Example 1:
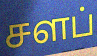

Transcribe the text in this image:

சளப்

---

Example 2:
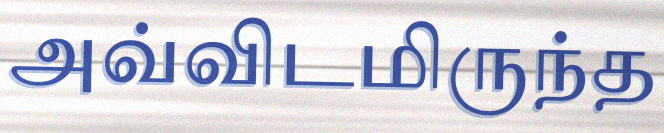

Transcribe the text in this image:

அவ்விடமிருந்த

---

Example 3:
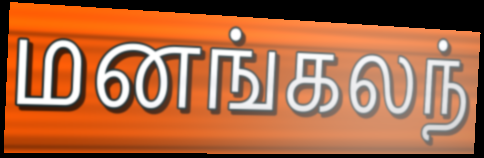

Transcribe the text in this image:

மனங்கலந்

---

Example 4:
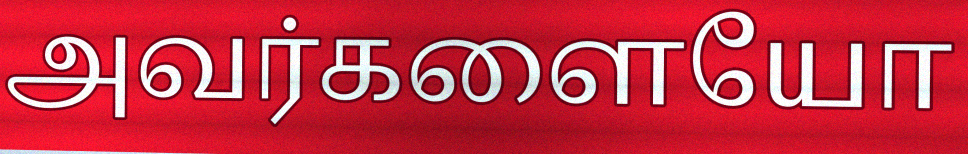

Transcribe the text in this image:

அவர்களையோ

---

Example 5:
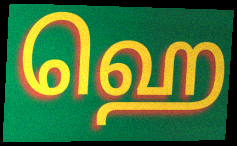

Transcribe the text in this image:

ஹெ